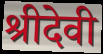
श्रीदेवी